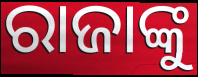
ରାଜାଙ୍କୁ